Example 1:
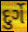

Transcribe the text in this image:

દુર્ગે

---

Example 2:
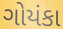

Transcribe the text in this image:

ગોયંકા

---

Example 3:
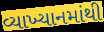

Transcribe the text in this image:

વ્યાખ્યાનમાંથી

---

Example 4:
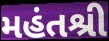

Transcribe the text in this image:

મહંતશ્રી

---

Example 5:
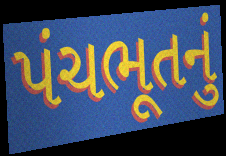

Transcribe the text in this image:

પંચભૂતનું